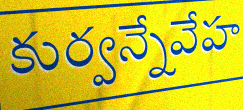
కుర్వన్నేవేహ